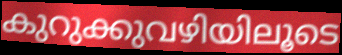
കുറുക്കുവഴിയിലൂടെ